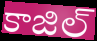
కాజిల్